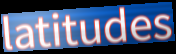
latitudes